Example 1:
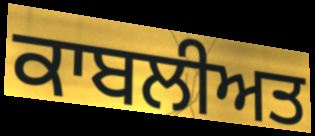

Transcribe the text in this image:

ਕਾਬਲੀਅਤ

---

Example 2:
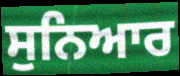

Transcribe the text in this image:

ਸੁਨਿਆਰ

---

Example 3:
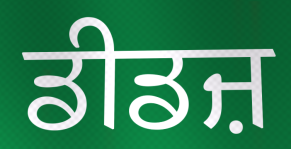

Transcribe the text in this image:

ਡੀਡਜ਼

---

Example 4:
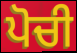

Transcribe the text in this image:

ਪੋਚੀ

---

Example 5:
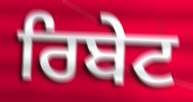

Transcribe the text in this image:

ਰਿਬੇਟ